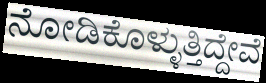
ನೋಡಿಕೊಳ್ಳುತ್ತಿದ್ದೇವೆ